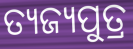
ତ୍ୟଜ୍ୟପୁତ୍ର